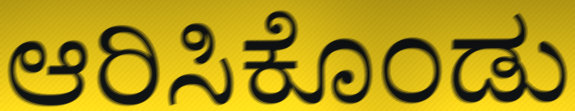
ಆರಿಸಿಕೊಂಡು